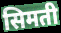
सिमती